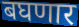
बघणार